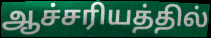
ஆச்சரியத்தில்